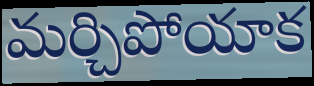
మర్చిపోయాక